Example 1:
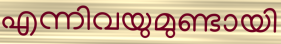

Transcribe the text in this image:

എന്നിവയുമുണ്ടായി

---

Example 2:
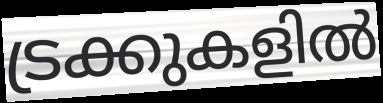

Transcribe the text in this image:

ട്രക്കുകളിൽ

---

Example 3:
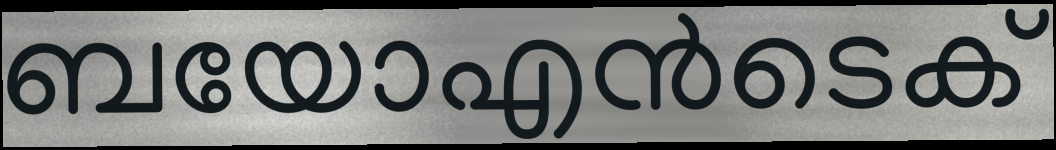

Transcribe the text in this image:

ബയോഎൻടെക്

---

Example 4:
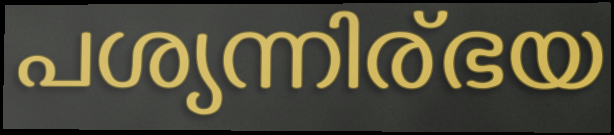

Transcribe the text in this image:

പശ്യന്നിര്ഭയ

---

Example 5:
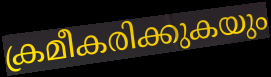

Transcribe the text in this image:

ക്രമീകരിക്കുകയും